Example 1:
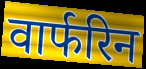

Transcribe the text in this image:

वार्फरिन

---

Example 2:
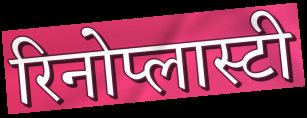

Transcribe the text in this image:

रिनोप्लास्टी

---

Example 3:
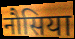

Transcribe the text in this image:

नौसिया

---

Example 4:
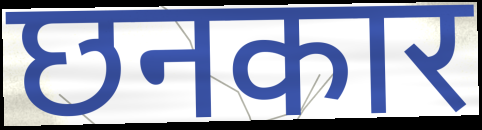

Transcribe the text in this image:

छनकार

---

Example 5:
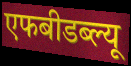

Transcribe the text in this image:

एफबीडब्ल्यू